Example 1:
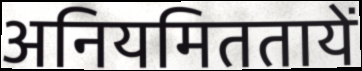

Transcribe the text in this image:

अनियमिततायें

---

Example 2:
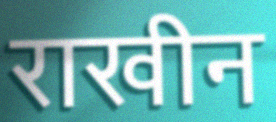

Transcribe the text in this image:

राखीन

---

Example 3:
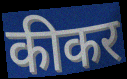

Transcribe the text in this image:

कीकर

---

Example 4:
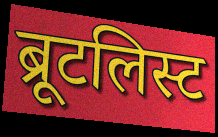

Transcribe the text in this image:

ब्रूटलिस्ट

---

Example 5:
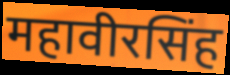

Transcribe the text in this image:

महावीरसिंह